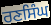
ਰਣਸਿੰਘ